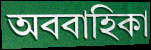
অববাহিকা